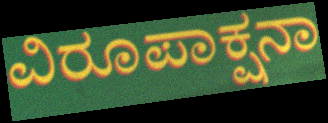
ವಿರೂಪಾಕ್ಷನಾ